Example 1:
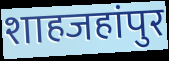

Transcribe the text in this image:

शाहजहांपुर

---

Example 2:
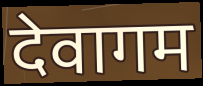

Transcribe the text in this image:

देवागम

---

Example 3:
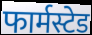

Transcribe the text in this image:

फार्मस्टेड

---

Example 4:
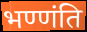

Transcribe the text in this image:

भण्णंति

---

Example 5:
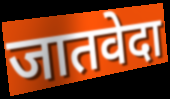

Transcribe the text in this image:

जातवेदा